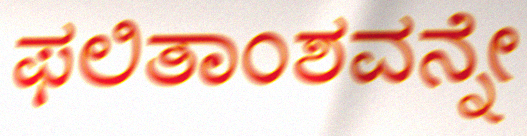
ಫಲಿತಾಂಶವನ್ನೇ